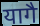
यागै